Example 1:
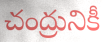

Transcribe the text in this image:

చంద్రునికీ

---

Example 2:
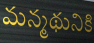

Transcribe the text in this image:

మన్మథునికి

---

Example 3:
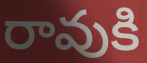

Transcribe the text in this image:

రావుకి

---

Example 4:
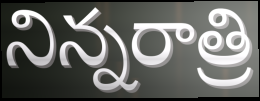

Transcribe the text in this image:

నిన్నరాత్రి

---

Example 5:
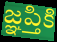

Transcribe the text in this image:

జ్ఞప్తికి